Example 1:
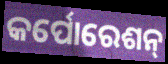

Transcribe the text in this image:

କର୍ପୋରେଶନ୍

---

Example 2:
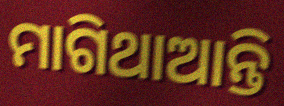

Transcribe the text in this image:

ମାଗିଥାଆନ୍ତି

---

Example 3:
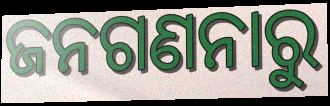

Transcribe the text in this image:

ଜନଗଣନାରୁ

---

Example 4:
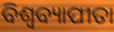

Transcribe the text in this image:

ବିଶ୍ୱବ୍ୟାପୀତା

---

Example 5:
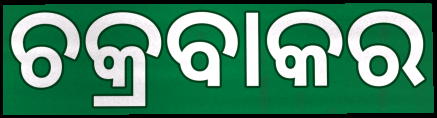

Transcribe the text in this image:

ଚକ୍ରବାକର